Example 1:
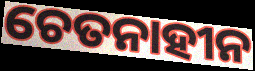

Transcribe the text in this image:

ଚେତନାହୀନ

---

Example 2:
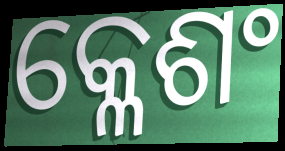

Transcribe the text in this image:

କ୍ଳେଶଂ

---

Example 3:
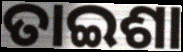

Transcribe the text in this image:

ତାଇଶା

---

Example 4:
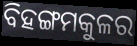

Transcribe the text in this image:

ବିହଙ୍ଗମକୁଳର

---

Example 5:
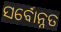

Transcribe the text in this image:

ସର୍ବୋନ୍ନତ